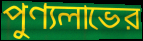
পুণ্যলাভের